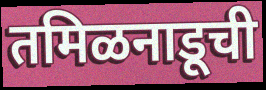
तमिळनाडूची